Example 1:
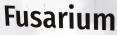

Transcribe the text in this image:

Fusarium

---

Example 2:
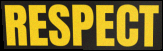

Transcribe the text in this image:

RESPECT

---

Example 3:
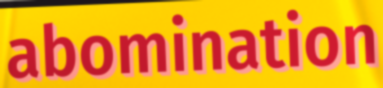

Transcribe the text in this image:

abomination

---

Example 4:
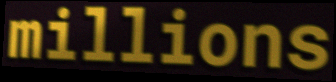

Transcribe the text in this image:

millions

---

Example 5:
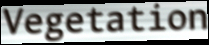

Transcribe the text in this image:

Vegetation